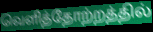
வெளித்தோற்றத்தில்